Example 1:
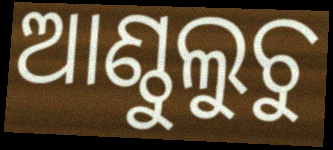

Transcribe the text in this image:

ଆଣ୍ଠୁଲୁଚୁ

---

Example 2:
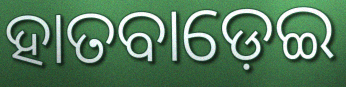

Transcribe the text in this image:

ହାତବାଡ଼େଇ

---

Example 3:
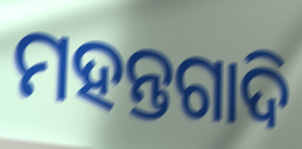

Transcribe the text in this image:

ମହନ୍ତଗାଦି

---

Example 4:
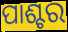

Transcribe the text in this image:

ପାଶ୍ଚର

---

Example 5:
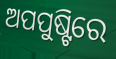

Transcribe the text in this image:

ଅପପୁଷ୍ଟିରେ